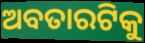
ଅବତାରଟିକୁ